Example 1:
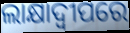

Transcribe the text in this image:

ଲାକ୍ଷାଦ୍ୱୀପରେ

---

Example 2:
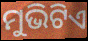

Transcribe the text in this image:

ମୁଭିଟିଏ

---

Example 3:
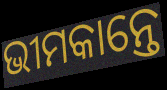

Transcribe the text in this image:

ଭୀମକାନ୍ତେ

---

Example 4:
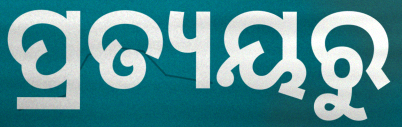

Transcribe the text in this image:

ପ୍ରତ୍ୟୟରୁ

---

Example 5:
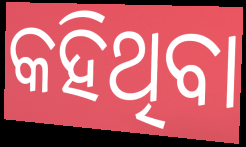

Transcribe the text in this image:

କହିଥିବା